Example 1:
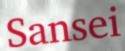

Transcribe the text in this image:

Sansei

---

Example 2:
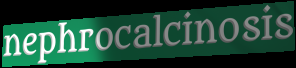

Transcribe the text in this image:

nephrocalcinosis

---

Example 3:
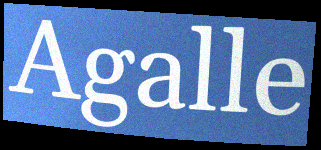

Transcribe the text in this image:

Agalle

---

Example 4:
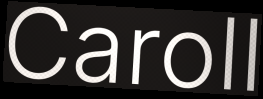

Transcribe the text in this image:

Caroll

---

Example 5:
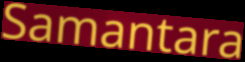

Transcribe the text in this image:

Samantara